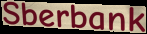
Sberbank